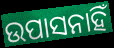
ଉପାସନାହିଁ